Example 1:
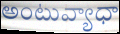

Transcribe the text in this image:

అంటువ్యాధా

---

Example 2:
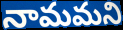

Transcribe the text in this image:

నామమని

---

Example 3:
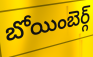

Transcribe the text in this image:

బోయింబెర్గ్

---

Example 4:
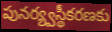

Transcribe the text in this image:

పునర్య్వస్థీకరణకు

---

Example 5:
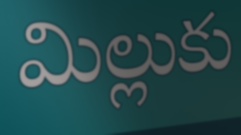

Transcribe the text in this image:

మిల్లుకు